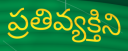
ప్రతివ్యక్తిని